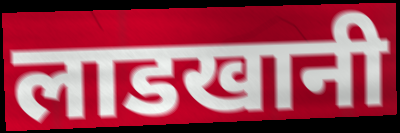
लाडखानी